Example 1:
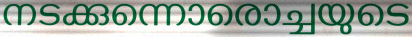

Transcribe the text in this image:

നടക്കുന്നൊരൊച്ചയുടെ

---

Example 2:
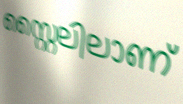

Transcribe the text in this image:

സ്റ്റൈലിലാണ്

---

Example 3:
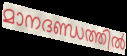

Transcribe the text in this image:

മാനദണ്ഡത്തിൽ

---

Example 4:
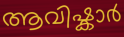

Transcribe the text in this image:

ആവിഷ്കാർ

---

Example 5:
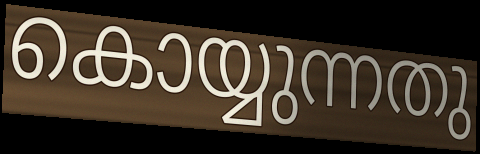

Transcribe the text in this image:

കൊയ്യുന്നതു